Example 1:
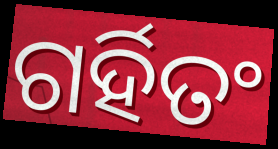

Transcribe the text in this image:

ଗର୍ହିତଂ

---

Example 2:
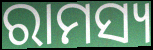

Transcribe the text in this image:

ରାମସ୍ୟ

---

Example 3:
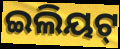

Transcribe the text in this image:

ଇଲିୟଟ୍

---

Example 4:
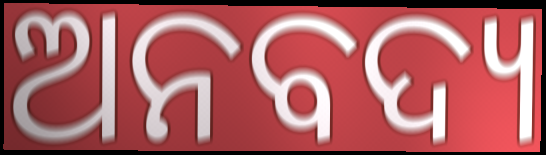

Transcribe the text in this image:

ଅନବଦ୍ୟ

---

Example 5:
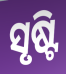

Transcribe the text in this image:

ସୃଷ୍ଟି